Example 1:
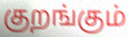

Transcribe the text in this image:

குறங்கும்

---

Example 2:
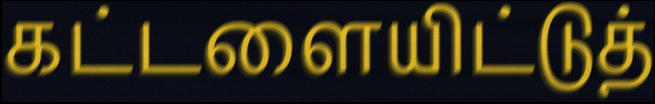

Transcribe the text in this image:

கட்டளையிட்டுத்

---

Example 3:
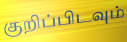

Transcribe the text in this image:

குறிப்பிடவும்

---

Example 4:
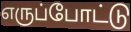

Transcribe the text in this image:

எருப்போட்டு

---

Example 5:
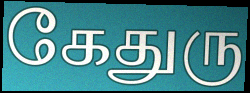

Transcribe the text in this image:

கேதுரு